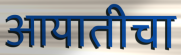
आयातीचा